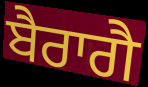
ਬੈਰਾਗੈ